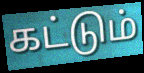
கட்டும்